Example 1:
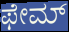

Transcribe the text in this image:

ಫೇಮ್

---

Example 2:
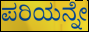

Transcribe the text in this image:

ಪರಿಯನ್ನೇ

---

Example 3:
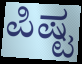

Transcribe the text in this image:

ಪಿಷ್ಟ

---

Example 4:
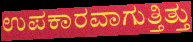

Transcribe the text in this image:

ಉಪಕಾರವಾಗುತ್ತಿತ್ತು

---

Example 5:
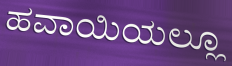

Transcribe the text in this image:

ಹವಾಯಿಯಲ್ಲೂ